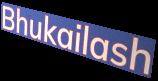
Bhukailash